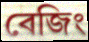
বেজিং